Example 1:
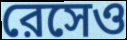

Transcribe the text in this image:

রেসেও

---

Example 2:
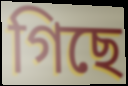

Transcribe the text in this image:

গিছে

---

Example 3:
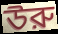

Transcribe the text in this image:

উরু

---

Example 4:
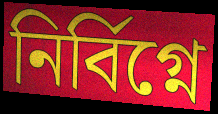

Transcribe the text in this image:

নির্বিগ্নে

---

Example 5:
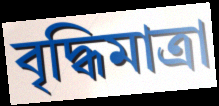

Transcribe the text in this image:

বৃদ্ধিমাত্রা